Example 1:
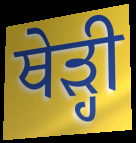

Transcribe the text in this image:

ਥੇੜ੍ਹੀ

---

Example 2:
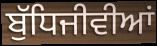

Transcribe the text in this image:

ਬੁੱਧਿਜੀਵੀਆਂ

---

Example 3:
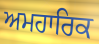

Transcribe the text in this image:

ਅਮਹਾਰਿਕ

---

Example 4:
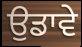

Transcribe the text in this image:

ਉਡਾਵੇ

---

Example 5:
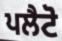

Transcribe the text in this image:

ਪਲੈਟੋ